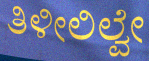
ತಿಳೀಲಿಲ್ವೇ